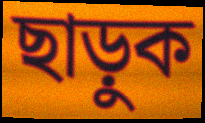
ছাড়ুক